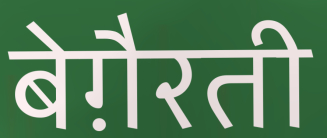
बेग़ैरती